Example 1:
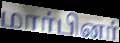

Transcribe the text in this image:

மார்பினர்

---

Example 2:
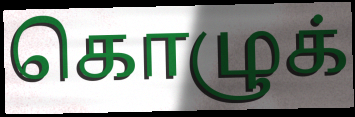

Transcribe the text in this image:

கொழுக்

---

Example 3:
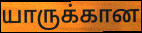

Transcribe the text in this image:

யாருக்கான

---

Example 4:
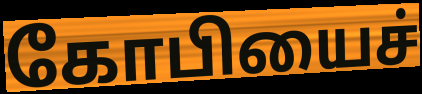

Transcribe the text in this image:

கோபியைச்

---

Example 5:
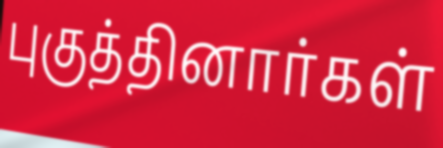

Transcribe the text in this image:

புகுத்தினார்கள்